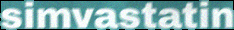
simvastatin